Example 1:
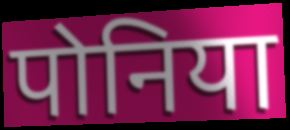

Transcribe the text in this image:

पोनिया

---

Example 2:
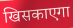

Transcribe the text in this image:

खिसकाएगा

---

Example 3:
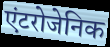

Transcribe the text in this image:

एंटरोजेनिक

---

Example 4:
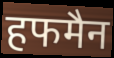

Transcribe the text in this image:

हफमैन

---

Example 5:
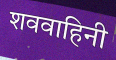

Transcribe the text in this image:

शववाहिनी